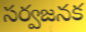
సర్వజనక